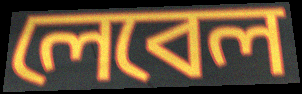
লেবেল